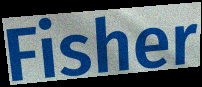
Fisher